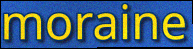
moraine